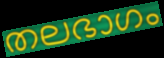
തലഭാഗം